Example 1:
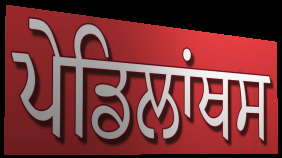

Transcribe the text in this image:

ਪੇਡਿਲਾਂਥਸ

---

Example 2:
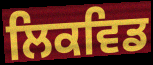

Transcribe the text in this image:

ਲਿਕਵਿਡ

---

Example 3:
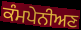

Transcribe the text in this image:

ਕੰਮਪੇਨੀਅਣ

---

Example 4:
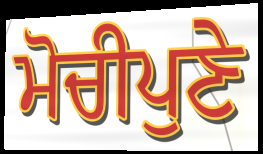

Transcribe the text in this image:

ਮੋਚੀਪੁਣੇ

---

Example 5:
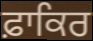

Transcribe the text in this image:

ਫ਼ਾਕਿਰ